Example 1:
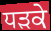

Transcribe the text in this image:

ਧੜਕੇ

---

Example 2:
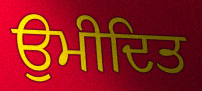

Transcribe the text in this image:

ਉਮੀਦਿਤ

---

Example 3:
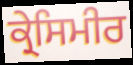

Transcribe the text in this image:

ਕ੍ਰੇਸਿਮੀਰ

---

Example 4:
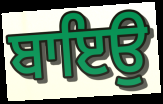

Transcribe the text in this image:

ਬਾਇਉ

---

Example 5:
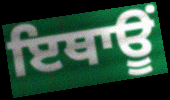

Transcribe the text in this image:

ਇਥਾਊਂ